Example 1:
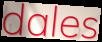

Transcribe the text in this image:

dales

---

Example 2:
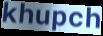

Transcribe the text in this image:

khupch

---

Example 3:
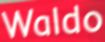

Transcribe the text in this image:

Waldo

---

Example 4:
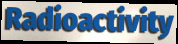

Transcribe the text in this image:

Radioactivity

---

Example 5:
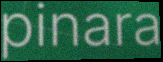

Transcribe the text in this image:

pinara